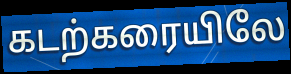
கடற்கரையிலே